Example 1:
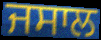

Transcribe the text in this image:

ਜਸਾਲ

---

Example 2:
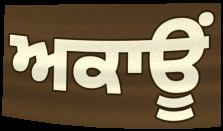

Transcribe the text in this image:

ਅਕਾਊਂ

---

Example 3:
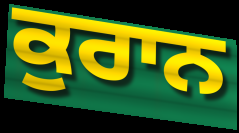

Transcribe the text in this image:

ਕੁਰਾਨ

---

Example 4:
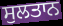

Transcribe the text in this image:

ਸੁਲਤਾਨ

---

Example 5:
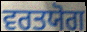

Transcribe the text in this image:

ਵਰਤਯੋਗ